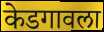
केडगावला